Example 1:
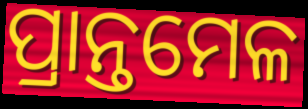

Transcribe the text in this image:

ପ୍ରାନ୍ତମେଳ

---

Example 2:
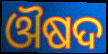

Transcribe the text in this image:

ଔଷଦ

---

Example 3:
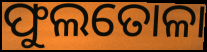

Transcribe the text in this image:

ଫୁଲତୋଳା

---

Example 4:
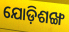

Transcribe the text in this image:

ଯୋଡ଼ିଶଙ୍ଖ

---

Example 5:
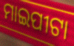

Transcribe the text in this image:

ମାଇପୀଟା